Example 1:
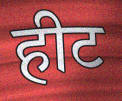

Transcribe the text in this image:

हीट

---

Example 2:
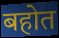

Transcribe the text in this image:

बहोत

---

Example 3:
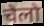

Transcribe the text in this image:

चेलो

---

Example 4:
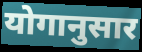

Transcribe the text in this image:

योगानुसार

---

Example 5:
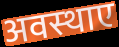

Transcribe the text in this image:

अवस्थाए